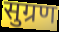
सुग्रण